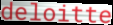
deloitte